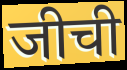
जीची